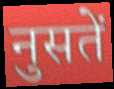
नुसतें